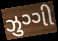
ઝુગ્ગી